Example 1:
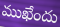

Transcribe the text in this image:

ముఖేందు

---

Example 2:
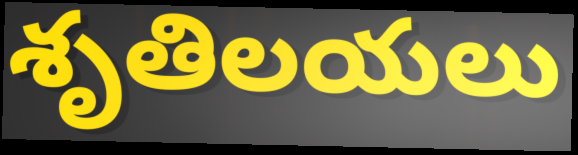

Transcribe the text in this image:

శృతిలయలు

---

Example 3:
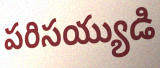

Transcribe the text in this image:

పరిసయ్యుడి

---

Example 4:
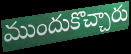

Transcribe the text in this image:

ముందుకొచ్చారు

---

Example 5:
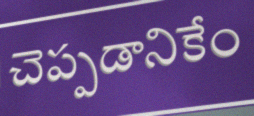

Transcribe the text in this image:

చెప్పడానికేం